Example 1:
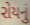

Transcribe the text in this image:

રોયનું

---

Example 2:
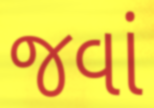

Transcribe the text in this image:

જવાં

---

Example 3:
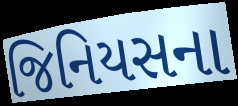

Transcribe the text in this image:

જિનિયસના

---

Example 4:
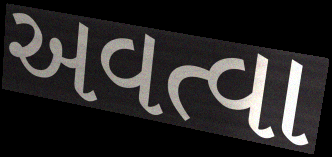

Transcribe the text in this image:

અવત્વા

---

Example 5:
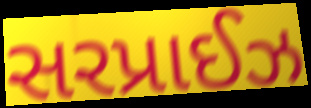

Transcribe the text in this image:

સરપ્રાઈઝ